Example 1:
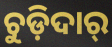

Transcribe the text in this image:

ଚୁଡ଼ିଦାର୍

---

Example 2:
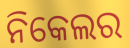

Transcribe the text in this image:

ନିକେଲର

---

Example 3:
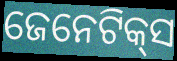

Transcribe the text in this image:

ଜେନେଟିକ୍‌ସ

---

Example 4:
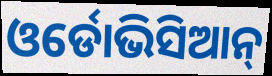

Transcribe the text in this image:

ଓର୍ଡୋଭିସିଆନ୍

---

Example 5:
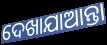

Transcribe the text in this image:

ଦେଖାଯାଆନ୍ତା